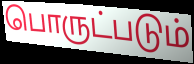
பொருட்படும்